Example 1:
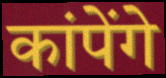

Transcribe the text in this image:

कांपेंगे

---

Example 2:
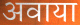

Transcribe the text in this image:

अवाया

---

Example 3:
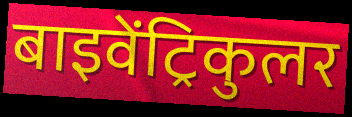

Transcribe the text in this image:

बाइवेंट्रिकुलर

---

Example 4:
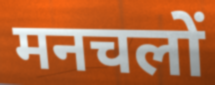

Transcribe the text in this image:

मनचलों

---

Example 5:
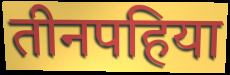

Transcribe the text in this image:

तीनपहिया